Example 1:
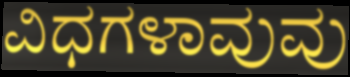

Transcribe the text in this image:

ವಿಧಗಳಾವುವು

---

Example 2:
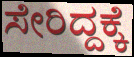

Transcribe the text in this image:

ಸೇರಿದ್ದಕ್ಕೆ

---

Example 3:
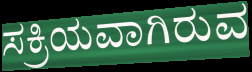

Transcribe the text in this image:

ಸಕ್ರಿಯವಾಗಿರುವ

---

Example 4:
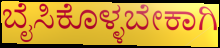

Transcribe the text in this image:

ಬೈಸಿಕೊಳ್ಳಬೇಕಾಗಿ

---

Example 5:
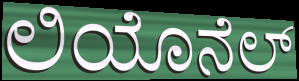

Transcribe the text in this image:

ಲಿಯೊನೆಲ್